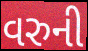
વરુની